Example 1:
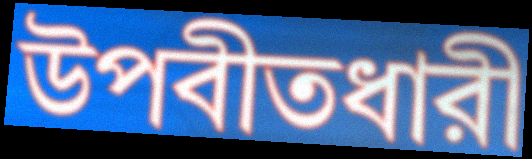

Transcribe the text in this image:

উপবীতধারী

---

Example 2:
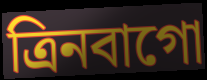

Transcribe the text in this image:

ত্রিনবাগো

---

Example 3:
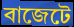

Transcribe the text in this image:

বাজেটে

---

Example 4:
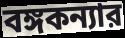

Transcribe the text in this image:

বঙ্গকন্যার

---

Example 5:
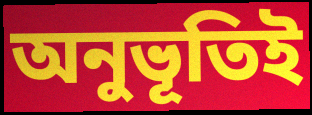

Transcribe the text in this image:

অনুভূতিই